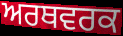
ਅਰਥਵਰਕ